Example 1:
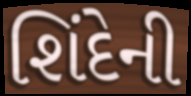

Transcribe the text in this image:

શિંદેની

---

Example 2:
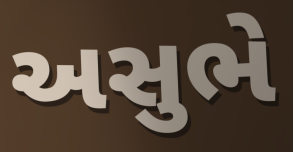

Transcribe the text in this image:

અસુભે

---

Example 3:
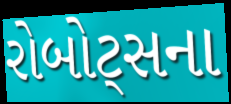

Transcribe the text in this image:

રોબોટ્સના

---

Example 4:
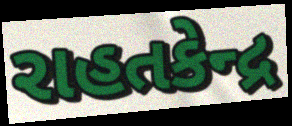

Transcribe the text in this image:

રાહતકેન્દ્ર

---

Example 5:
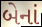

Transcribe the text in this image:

બેનાં